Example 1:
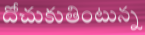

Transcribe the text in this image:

దోచుకుతింటున్న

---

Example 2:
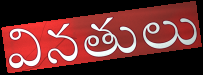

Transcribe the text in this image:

వినతులు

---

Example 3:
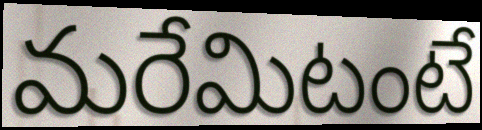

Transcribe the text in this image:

మరేమిటంటే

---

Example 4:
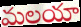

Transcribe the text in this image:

మలయా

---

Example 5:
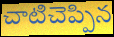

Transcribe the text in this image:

చాటిచెప్పిన